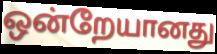
ஒன்றேயானது